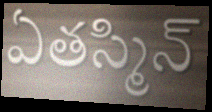
ఏతస్మిన్